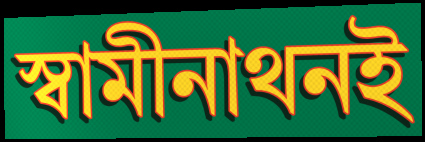
স্বামীনাথনই